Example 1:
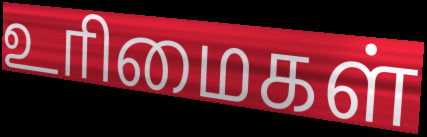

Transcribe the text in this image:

உரிமைகள்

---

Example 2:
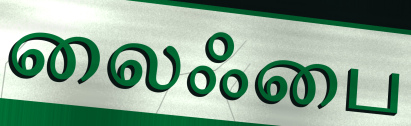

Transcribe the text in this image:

லைஃபை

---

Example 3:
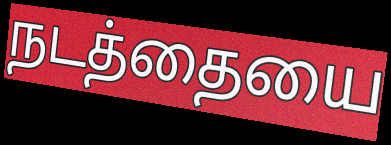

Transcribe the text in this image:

நடத்தையை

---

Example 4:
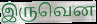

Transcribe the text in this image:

இருவென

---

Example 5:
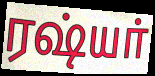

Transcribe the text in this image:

ரஷ்யர்